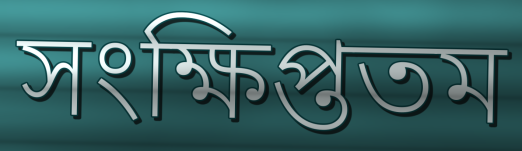
সংক্ষিপ্ততম